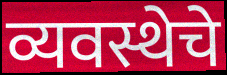
व्यवस्थेचे